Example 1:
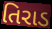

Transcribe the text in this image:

તિરાડ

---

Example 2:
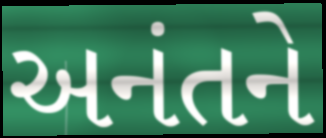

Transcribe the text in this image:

અનંતને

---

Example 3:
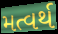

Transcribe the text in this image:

મત્વર્થ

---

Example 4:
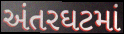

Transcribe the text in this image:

અંતરઘટમાં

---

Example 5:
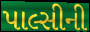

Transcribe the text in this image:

પાલ્સીની